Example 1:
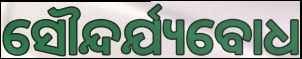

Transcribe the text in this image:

ସୌନ୍ଦର୍ଯ୍ୟବୋଧ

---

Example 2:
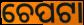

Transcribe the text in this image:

ଚେପଟା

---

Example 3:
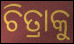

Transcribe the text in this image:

ଚିତ୍ରାକୁ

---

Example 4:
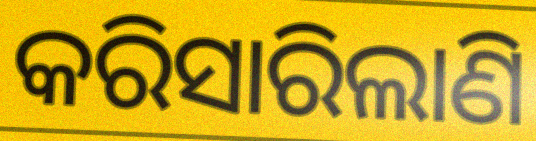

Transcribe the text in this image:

କରିସାରିଲାଣି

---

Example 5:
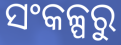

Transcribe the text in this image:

ସଂକଳ୍ପରୁ